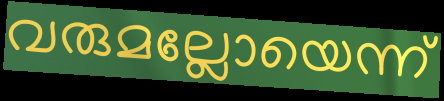
വരുമല്ലോയെന്ന്